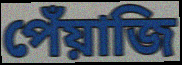
পেঁয়াজি